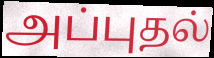
அப்புதல்